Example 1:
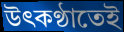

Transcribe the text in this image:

উৎকণ্ঠাতেই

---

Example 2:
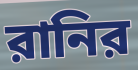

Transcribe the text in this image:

রানির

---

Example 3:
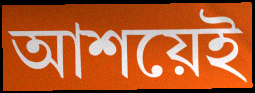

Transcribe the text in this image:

আশয়েই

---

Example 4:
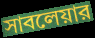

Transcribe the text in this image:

সাবলেয়ার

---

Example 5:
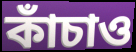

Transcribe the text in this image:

কাঁচাও